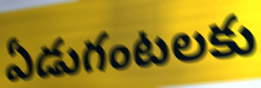
ఏడుగంటలకు